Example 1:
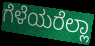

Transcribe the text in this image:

ಗೆಳೆಯರೆಲ್ಲಾ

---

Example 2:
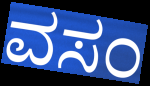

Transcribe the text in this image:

ವಸಂ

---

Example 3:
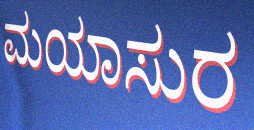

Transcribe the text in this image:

ಮಯಾಸುರ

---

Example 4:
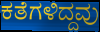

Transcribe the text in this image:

ಕತೆಗಳಿದ್ದವು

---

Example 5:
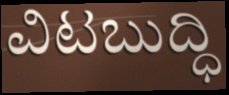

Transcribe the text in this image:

ವಿಟಬುದ್ಧಿ